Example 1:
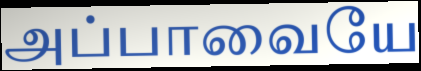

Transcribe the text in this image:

அப்பாவையே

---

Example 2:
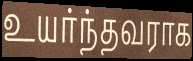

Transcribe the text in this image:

உயர்ந்தவராக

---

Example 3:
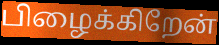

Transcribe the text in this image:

பிழைக்கிறேன்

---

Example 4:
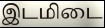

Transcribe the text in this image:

இடமிடை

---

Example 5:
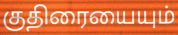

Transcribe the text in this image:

குதிரையையும்